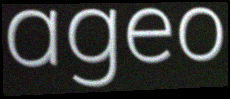
ageo